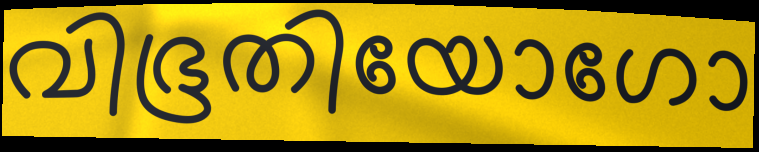
വിഭൂതിയോഗോ